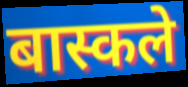
बास्कले